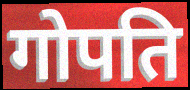
गोपति